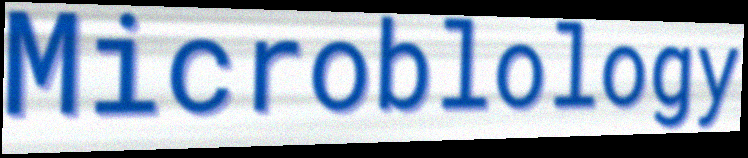
Microblology